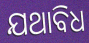
ଯଥାବିଧ